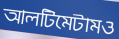
আলটিমেটামও